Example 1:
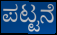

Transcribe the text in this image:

ಪಟ್ಟನೆ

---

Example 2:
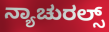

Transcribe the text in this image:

ನ್ಯಾಚುರಲ್ಸ್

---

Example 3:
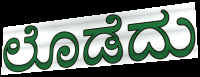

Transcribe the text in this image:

ಲೊಡೆದು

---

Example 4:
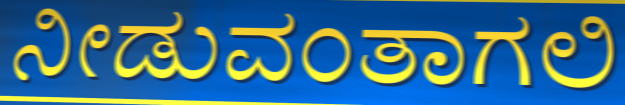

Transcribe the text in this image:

ನೀಡುವಂತಾಗಲಿ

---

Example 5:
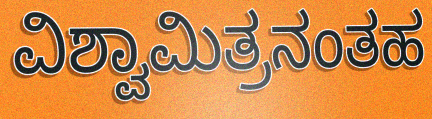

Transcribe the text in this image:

ವಿಶ್ವಾಮಿತ್ರನಂತಹ